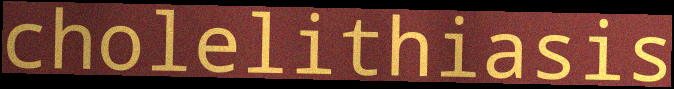
cholelithiasis